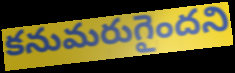
కనుమరుగైందని